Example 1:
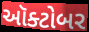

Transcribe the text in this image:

ઑક્ટોબર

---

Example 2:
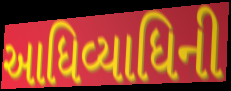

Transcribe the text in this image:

આધિવ્યાધિની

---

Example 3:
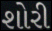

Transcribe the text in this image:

શોરી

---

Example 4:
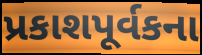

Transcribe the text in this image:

પ્રકાશપૂર્વકના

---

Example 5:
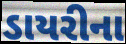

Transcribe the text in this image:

ડાયરીના